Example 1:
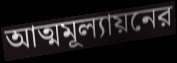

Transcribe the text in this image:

আত্মমূল্যায়নের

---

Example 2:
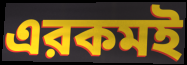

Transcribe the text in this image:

এরকমই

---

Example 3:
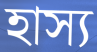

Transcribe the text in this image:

হাস্য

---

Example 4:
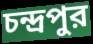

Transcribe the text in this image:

চন্দ্রপুর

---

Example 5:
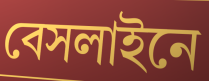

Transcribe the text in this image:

বেসলাইনে